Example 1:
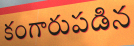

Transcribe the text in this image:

కంగారుపడిన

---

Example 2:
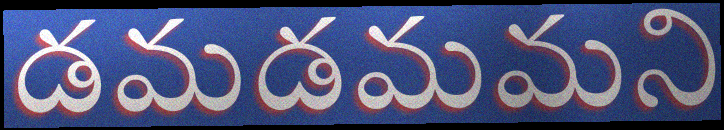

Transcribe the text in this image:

డమడమమని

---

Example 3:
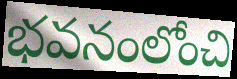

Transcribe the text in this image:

భవనంలోంచి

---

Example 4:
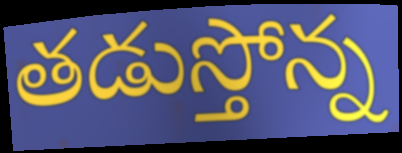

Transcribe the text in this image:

తడుస్తోన్న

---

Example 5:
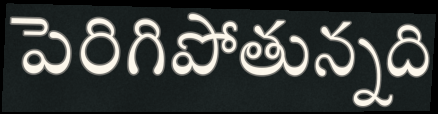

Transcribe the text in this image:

పెరిగిపోతున్నది